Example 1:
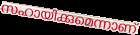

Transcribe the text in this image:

സഹായിക്കുമെന്നാണ്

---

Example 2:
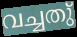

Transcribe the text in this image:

വച്ചതു്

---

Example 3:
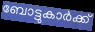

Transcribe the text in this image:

ബോട്ടുകാർക്ക്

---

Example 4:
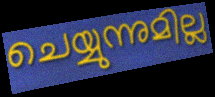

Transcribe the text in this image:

ചെയ്യുന്നുമില്ല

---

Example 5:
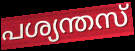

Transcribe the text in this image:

പശ്യന്തസ്